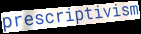
prescriptivism